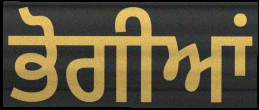
ਭੋਗੀਆਂ